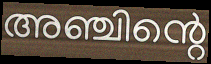
അഞ്ചിന്റെ